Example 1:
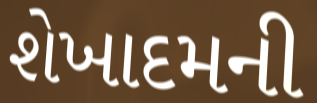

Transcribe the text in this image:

શેખાદમની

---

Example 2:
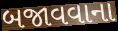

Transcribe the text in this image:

બજાવવાના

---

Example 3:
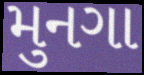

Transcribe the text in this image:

મુનગા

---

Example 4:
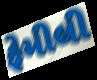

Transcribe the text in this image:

ફેમીલી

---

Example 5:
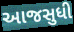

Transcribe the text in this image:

આજસુધી